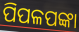
ପିପଳପଙ୍କା